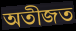
অতীজত